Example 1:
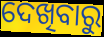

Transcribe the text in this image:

ଦେଖିବାରୁ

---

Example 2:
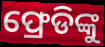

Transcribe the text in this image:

ଫ୍ରେଡିଙ୍କୁ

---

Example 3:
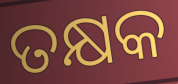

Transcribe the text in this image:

ତକ୍ଷକ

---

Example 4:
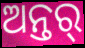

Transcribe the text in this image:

ଅନ୍ତର୍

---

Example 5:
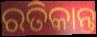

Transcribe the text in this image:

ରତିକାନ୍ତ